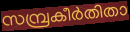
സമ്പ്രകീർതിതാ